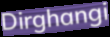
Dirghangi